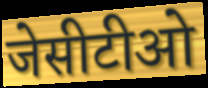
जेसीटीओ